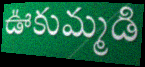
ఊకుమ్మడి